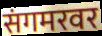
संगमरवर